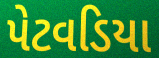
પેટવડિયા